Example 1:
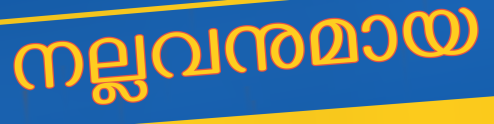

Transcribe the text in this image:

നല്ലവനുമായ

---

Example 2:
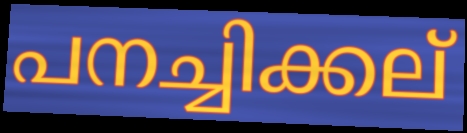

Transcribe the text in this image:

പനച്ചിക്കല്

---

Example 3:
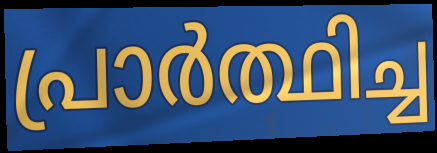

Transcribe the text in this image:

പ്രാർത്ഥിച്ച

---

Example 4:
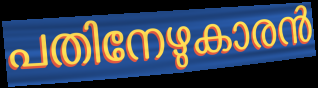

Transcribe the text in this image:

പതിനേഴുകാരൻ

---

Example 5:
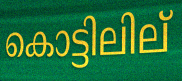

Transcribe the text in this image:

കൊട്ടിലില്